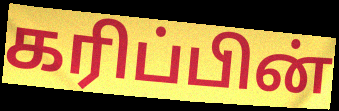
கரிப்பின்